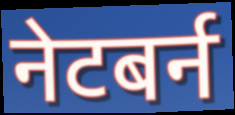
नेटबर्न